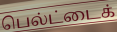
பெல்ட்டைக்